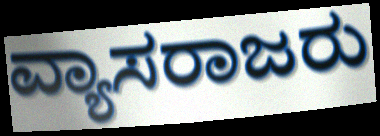
ವ್ಯಾಸರಾಜರು